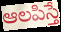
ఆలపిస్తే